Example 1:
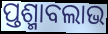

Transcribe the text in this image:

ପ୍ତଶ୍ମାବଲାଭ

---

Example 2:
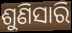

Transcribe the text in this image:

ଶୁଣିସାରି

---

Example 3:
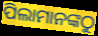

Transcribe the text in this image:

ପିଲାମାନଙ୍କଠୁ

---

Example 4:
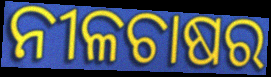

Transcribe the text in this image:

ନୀଳଚାଷର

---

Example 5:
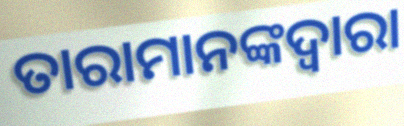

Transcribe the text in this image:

ତାରାମାନଙ୍କଦ୍ୱାରା